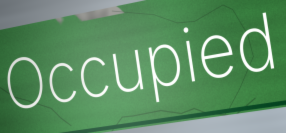
Occupied